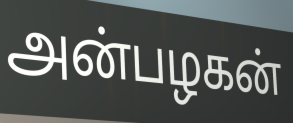
அன்பழகன்